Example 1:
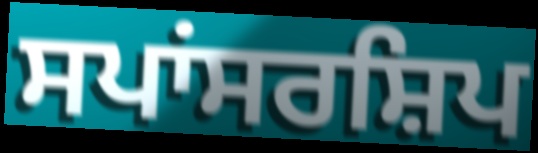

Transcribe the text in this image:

ਸਪਾਂਸਰਸ਼ਿਪ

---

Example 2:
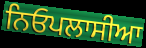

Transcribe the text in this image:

ਨਿਓਪਲਾਸੀਆ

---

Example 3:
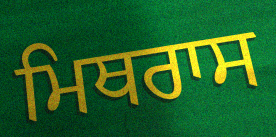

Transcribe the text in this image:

ਮਿਥਰਾਸ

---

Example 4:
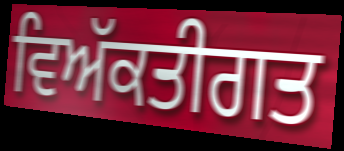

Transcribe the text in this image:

ਵਿਅੱਕਤੀਗਤ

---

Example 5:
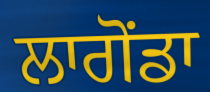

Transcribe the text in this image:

ਲਾਗੋਂਡਾ